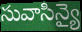
సువాసిన్యై